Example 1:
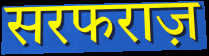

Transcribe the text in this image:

सरफराज़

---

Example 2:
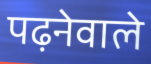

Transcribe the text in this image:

पढ़नेवाले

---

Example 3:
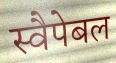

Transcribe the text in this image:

स्वैपेबल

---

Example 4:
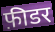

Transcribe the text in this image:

फ़ीडर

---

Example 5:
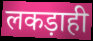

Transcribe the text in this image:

लकड़ाही